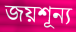
জয়শূন্য